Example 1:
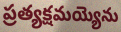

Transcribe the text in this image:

ప్రత్యక్షమయ్యెను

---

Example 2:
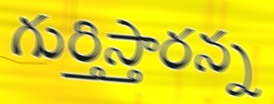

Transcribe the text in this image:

గుర్తిస్తారన్న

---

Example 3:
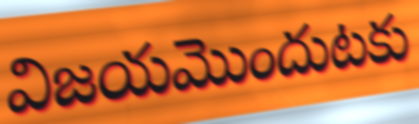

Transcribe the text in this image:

విజయమొందుటకు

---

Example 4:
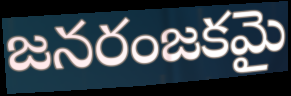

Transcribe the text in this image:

జనరంజకమై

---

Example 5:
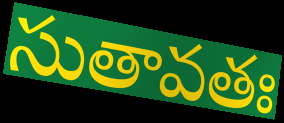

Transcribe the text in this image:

సుతావతః